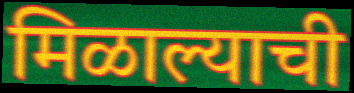
मिळाल्याची